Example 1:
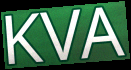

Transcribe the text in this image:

KVA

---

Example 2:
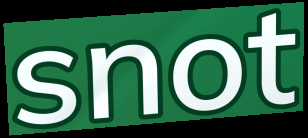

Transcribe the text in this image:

snot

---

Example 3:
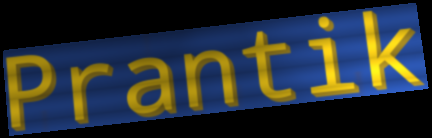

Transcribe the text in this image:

Prantik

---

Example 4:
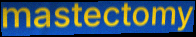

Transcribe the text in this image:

mastectomy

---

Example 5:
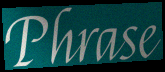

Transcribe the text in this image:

Phrase